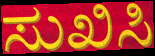
ಸುಖಿಸಿ